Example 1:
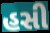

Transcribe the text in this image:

હસી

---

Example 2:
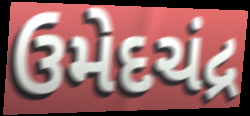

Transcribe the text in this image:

ઉમેદચંદ્ર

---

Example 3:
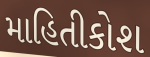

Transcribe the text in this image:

માહિતીકોશ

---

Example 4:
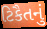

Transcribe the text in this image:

ટિકૈતનું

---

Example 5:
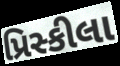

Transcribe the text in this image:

પ્રિસ્કીલા